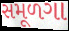
સમૂળગા